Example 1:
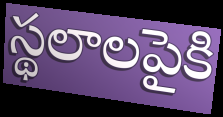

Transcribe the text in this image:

స్థలాలపైకి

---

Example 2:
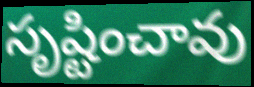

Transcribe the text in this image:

సృష్టించావు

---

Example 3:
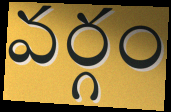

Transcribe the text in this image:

వర్గం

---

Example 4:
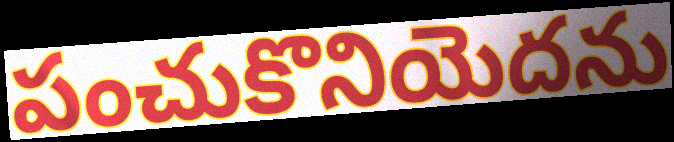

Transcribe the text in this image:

పంచుకొనియెదను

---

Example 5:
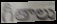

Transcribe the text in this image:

గీతాలు